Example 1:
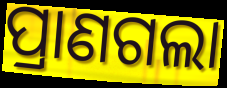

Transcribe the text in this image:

ପ୍ରାଣଗଲା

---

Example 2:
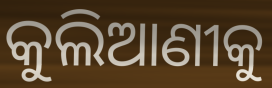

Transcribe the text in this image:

କୁଲିଆଣୀକୁ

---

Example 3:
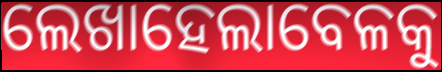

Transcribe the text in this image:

ଲେଖାହେଲାବେଳକୁ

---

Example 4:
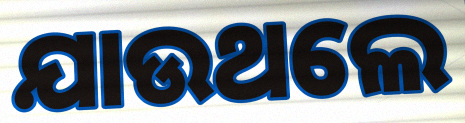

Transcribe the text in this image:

ଯାଉଥଲେ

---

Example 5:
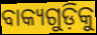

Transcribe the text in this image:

ବାକ୍ୟଗୁଡ଼ିକୁ